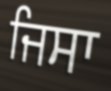
ਜਿਸਾ